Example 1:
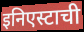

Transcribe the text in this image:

इनिएस्टाची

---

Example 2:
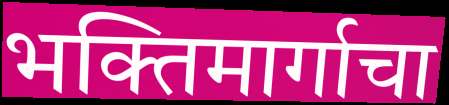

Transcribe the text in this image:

भक्तिमार्गाचा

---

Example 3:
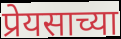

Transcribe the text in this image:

प्रेयसाच्या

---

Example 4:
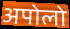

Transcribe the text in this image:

अपोलो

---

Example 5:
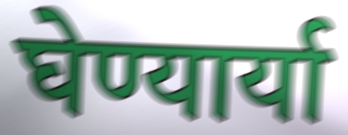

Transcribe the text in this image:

घेण्यार्या